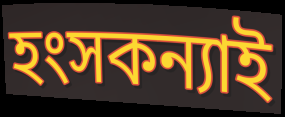
হংসকন্যাই